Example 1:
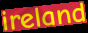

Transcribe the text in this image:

ireland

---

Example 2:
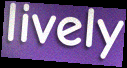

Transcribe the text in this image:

lively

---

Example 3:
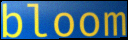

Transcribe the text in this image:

bloom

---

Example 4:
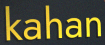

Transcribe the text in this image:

kahan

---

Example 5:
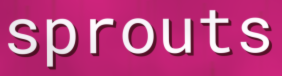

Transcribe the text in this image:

sprouts